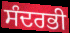
ਸੰਦਰਭੀ